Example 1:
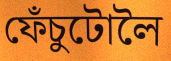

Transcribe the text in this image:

ফেঁচুটোলৈ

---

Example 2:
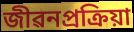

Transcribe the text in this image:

জীৱনপ্ৰক্ৰিয়া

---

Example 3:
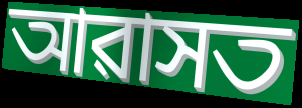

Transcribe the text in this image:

আৱাসত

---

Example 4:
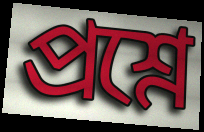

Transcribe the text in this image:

প্ৰশ্নে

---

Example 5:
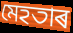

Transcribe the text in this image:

মেহতাৰ